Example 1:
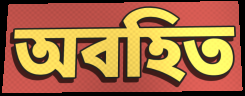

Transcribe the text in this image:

অবহিত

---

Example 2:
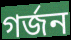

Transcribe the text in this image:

গর্জন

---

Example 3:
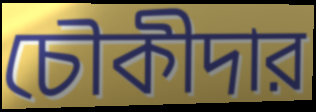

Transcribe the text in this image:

চৌকীদার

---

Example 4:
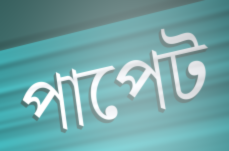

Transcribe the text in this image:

পাপেট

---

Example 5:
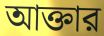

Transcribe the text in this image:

আক্তার